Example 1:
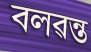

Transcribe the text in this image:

বলৱন্ত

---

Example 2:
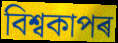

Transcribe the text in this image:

বিশ্বকাপৰ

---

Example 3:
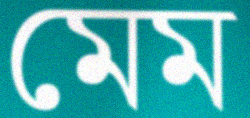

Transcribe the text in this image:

মেম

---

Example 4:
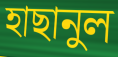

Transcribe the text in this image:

হাছানুল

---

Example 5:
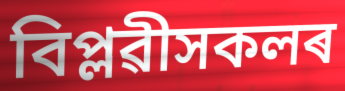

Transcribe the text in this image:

বিপ্লৱীসকলৰ